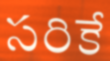
సరికే